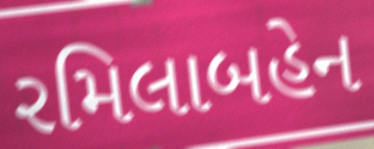
રમિલાબહેન